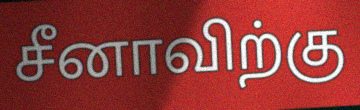
சீனாவிற்கு